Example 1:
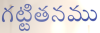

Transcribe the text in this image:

గట్టితనము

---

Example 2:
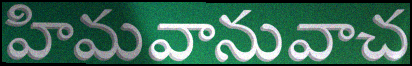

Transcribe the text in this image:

హిమవానువాచ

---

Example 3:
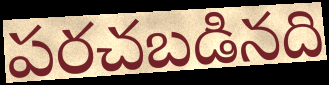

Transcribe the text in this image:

పరచబడినది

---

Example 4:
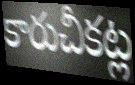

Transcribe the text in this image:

కారుచీకట్ల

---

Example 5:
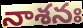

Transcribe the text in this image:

నాశనః